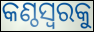
କଣ୍ଠସ୍ୱରକୁ